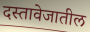
दस्तावेजातील